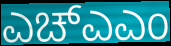
ಎಚ್ಎಎಂ